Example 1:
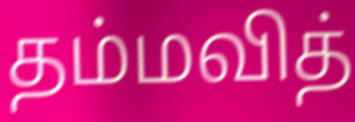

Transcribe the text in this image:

தம்மவித்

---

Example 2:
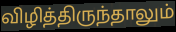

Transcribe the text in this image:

விழித்திருந்தாலும்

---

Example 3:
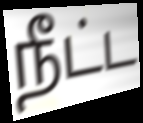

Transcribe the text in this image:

நீட்ட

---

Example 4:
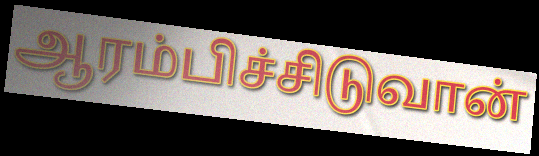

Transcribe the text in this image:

ஆரம்பிச்சிடுவான்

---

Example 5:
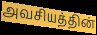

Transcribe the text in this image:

அவசியத்தின்